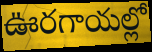
ఊరగాయల్లో